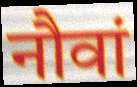
नौवां